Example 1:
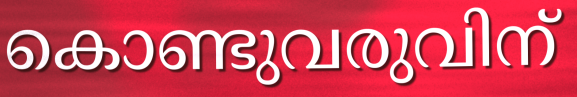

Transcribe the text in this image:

കൊണ്ടുവരുവിന്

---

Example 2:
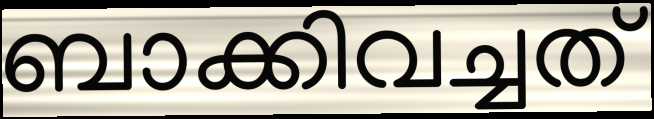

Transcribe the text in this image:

ബാക്കിവച്ചത്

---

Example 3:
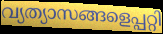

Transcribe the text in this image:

വ്യത്യാസങ്ങളെപ്പറ്റി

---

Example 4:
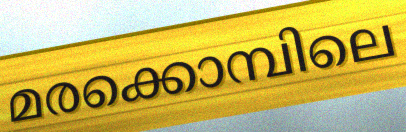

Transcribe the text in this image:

മരക്കൊമ്പിലെ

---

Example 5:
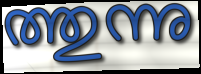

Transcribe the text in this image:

ത്തുന്നു